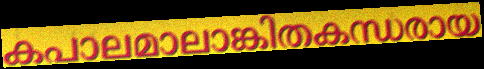
കപാലമാലാങ്കിതകന്ധരായ